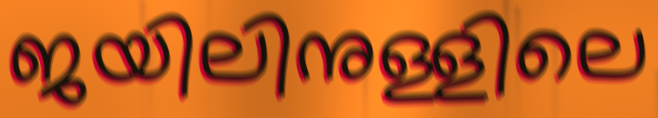
ജയിലിനുള്ളിലെ